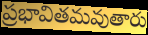
ప్రభావితమవుతారు